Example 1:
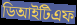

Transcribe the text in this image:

ডিআইটিএফ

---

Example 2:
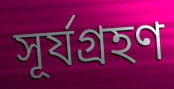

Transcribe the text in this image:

সূর্যগ্রহণ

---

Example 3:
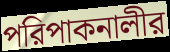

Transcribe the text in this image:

পরিপাকনালীর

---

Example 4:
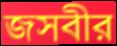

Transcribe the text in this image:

জসবীর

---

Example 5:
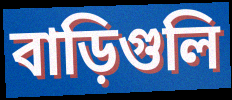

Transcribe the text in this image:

বাড়িগুলি